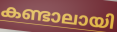
കണ്ടാലായി